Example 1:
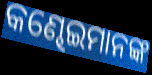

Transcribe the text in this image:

କଣ୍ଢେଇମାନଙ୍କ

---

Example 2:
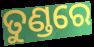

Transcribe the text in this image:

ତୁଣ୍ଡରେ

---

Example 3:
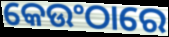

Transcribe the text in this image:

କେଉଂଠାରେ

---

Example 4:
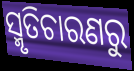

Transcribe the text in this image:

ସ୍ମୃତିଚାରଣରୁ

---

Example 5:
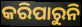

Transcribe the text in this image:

କରିପାରୁନି